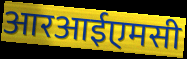
आरआईएमसी